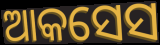
ଆକସେସ